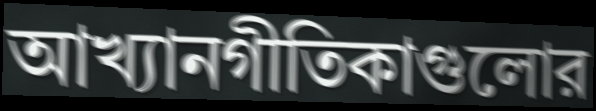
আখ্যানগীতিকাগুলোর